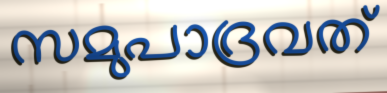
സമുപാദ്രവത്